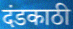
दंडकाठी